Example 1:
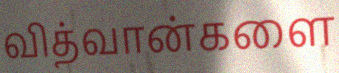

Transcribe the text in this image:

வித்வான்களை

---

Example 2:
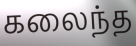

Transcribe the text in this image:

கலைந்த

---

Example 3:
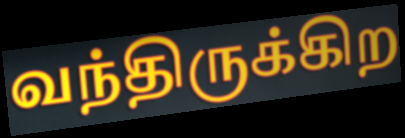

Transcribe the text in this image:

வந்திருக்கிற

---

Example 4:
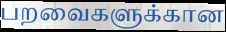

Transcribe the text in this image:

பறவைகளுக்கான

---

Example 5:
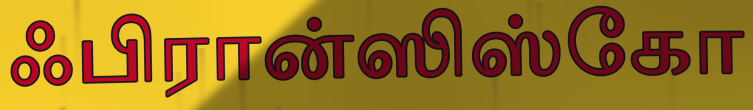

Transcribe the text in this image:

ஃபிரான்ஸிஸ்கோ